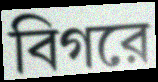
বিগরে